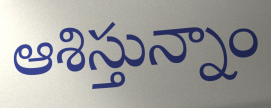
ఆశిస్తున్నాం